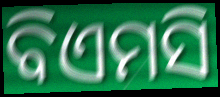
ବିଏମସି